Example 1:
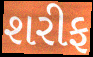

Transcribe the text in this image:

શરીફ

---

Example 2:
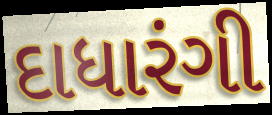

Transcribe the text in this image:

દાધારંગી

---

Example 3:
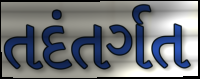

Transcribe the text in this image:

તદંતર્ગત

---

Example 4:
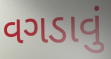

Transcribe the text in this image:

વગડાવું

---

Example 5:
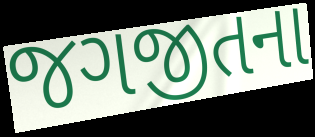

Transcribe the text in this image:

જગજીતના